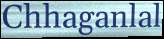
Chhaganlal